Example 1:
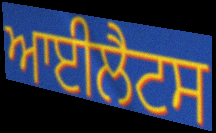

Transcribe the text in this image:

ਆਈਲੈਟਸ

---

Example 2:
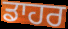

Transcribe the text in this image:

ਡਾਹਰ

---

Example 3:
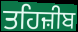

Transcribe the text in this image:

ਤਹਿਜ਼ੀਬ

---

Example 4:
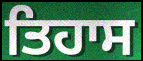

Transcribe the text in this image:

ਤਿਹਾਸ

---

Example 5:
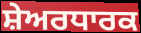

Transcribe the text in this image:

ਸ਼ੇਅਰਧਾਰਕ